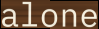
alone